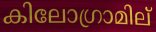
കിലോഗ്രാമില്